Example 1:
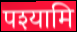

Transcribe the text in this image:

पश्यामि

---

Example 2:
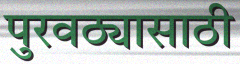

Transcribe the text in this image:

पुरवठ्यासाठी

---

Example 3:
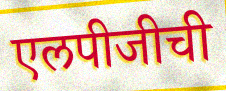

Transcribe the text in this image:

एलपीजीची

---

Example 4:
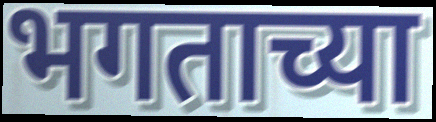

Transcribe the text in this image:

भगताच्या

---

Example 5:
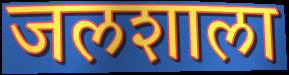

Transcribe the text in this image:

जलशाला